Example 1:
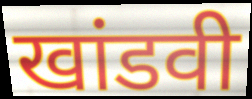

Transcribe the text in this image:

खांडवी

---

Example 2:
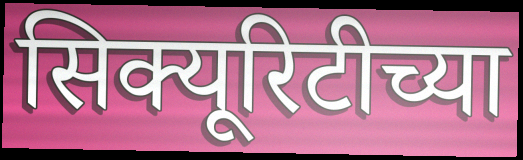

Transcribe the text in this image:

सिक्यूरिटीच्या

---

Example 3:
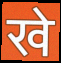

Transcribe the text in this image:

खे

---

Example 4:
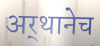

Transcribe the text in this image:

अर्थानेच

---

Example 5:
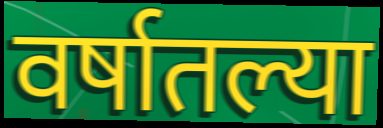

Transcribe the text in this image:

वर्षातल्या